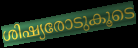
ശിഷ്യരോടുകൂടെ